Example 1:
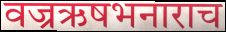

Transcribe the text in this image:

वज्रऋषभनाराच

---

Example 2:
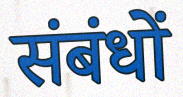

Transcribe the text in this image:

संबंधों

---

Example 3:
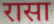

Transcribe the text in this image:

रासा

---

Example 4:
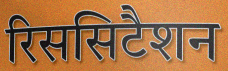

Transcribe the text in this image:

रिससिटैशन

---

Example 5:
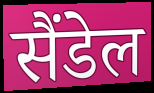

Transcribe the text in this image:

सैंडेल